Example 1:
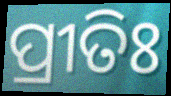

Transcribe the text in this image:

ପ୍ରୀତିଃ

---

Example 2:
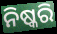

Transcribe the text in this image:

ନିଷ୍କରି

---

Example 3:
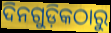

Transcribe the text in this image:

ଦିନଗୁଡ଼ିକଠାରୁ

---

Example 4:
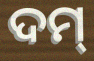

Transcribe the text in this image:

ଦମ୍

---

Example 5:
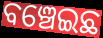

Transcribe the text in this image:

ବଞ୍ଚେଇଛ